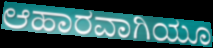
ಆಹಾರವಾಗಿಯೂ